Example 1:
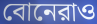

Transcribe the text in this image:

বোনেরাও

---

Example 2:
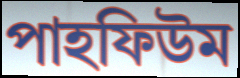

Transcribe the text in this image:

পাহফিউম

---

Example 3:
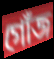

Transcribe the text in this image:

গোঁজ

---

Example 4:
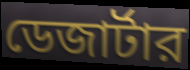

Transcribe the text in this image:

ডেজার্টার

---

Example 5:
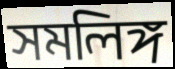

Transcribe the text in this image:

সমলিঙ্গ